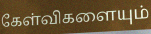
கேள்விகளையும்